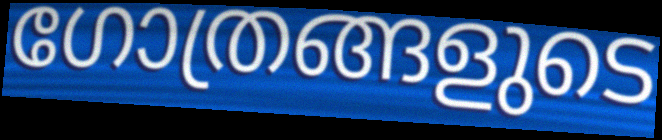
ഗോത്രങ്ങളുടെ